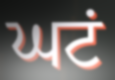
ਘਟਂ